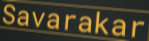
Savarakar